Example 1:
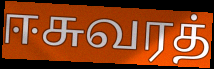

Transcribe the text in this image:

ஈசுவரத்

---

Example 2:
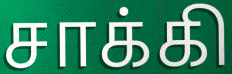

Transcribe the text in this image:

சாக்கி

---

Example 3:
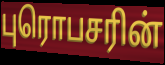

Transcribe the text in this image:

புரொபசரின்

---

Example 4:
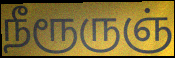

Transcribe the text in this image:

நீரூருஞ்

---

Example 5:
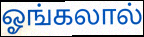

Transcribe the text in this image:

ஓங்கலால்